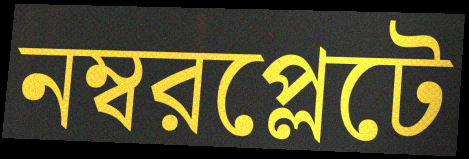
নম্বরপ্লেটে